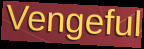
Vengeful